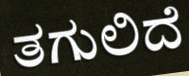
ತಗುಲಿದೆ